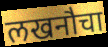
लखनौचा